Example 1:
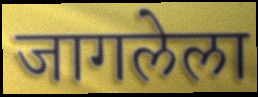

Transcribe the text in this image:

जागलेला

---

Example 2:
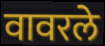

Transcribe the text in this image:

वावरले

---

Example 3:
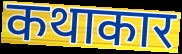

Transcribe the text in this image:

कथाकार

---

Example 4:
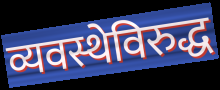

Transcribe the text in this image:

व्यवस्थेविरुद्ध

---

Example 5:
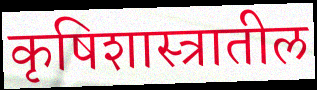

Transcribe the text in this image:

कृषिशास्त्रातील